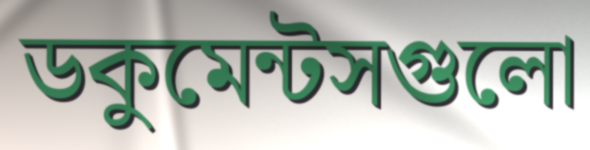
ডকুমেন্টসগুলো